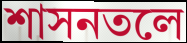
শাসনতলে